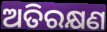
ଅତିରକ୍ଷଣ